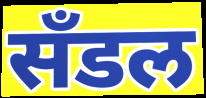
सँडल